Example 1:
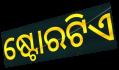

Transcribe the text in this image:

ଷ୍ଟୋରଟିଏ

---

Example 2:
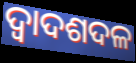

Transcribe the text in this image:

ଦ୍ୱାଦଶଦଳ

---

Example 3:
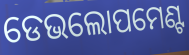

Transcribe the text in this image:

ଡେଭଲୋପମେଣ୍ଟ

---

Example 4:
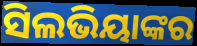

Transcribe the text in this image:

ସିଲଭିୟାଙ୍କର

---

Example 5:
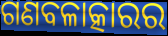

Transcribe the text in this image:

ଗଣବଳାତ୍କାରର